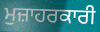
ਮੁਜ਼ਾਹਰਕਾਰੀ